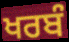
ਖਰਬੰ